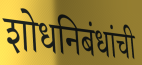
शोधनिबंधांची